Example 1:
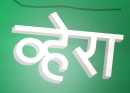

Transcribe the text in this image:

व्हेरा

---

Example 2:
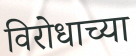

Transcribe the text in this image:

विरोधाच्या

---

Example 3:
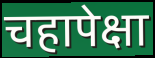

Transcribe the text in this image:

चहापेक्षा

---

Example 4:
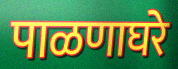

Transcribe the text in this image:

पाळणाघरे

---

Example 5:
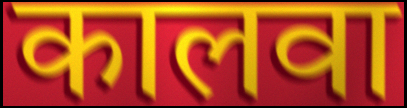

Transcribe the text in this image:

कालवा